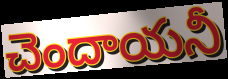
చెందాయనీ